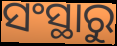
ସଂସ୍ଥାରୁ